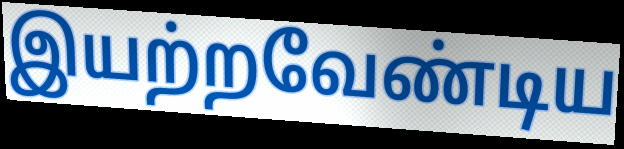
இயற்றவேண்டிய